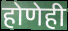
होणेही